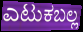
ಎಟುಕಬಲ್ಲ